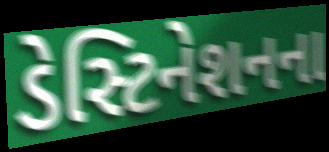
ડેસ્ટિનેશનના